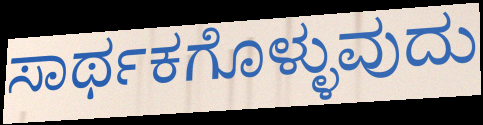
ಸಾರ್ಥಕಗೊಳ್ಳುವುದು